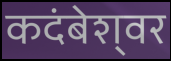
कदंबेश्वर